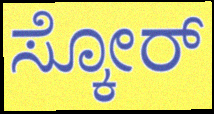
ಸ್ಕೋರ್